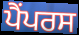
ਪੈਂਪਰਸ